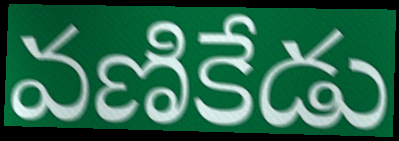
వణికేడు